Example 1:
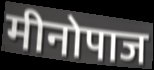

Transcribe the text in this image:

मीनोपाज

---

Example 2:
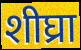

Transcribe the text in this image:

शीघ्रा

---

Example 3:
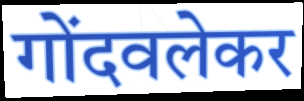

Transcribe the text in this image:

गोंदवलेकर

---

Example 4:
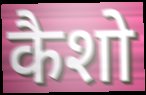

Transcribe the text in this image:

कैशो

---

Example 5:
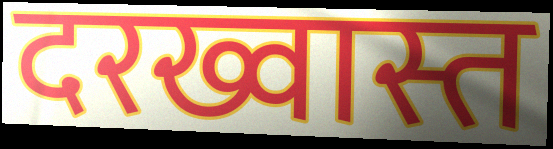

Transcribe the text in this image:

दरख्वास्त